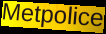
Metpolice